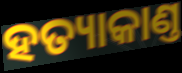
ହତ୍ୟାକାଣ୍ତ